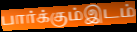
பார்க்கும்இடம்